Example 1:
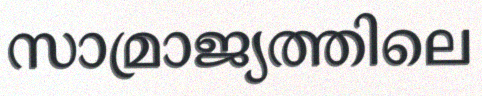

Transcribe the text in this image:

സാമ്രാജ്യത്തിലെ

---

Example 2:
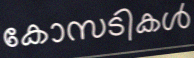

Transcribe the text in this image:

കോസടികൾ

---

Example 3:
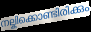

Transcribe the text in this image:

നല്കിക്കൊണ്ടിരിക്കും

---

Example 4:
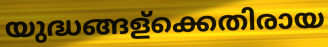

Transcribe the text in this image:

യുദ്ധങ്ങള്ക്കെതിരായ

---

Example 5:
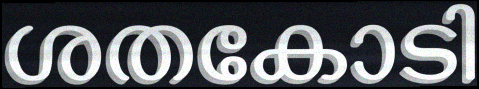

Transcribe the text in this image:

ശതകോടി